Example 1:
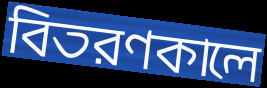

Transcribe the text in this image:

বিতরণকালে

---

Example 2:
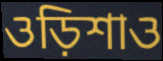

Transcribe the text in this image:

ওড়িশাও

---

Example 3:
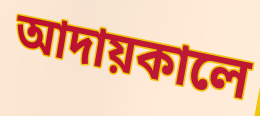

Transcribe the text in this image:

আদায়কালে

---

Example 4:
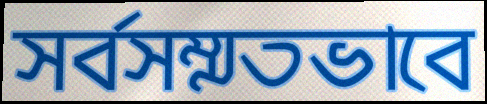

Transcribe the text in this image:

সর্বসম্মতভাবে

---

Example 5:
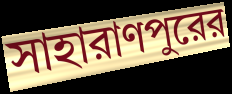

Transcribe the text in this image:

সাহারাণপুরের